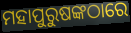
ମହାପୁରୁଷଙ୍କଠାରେ